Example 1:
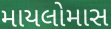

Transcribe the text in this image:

માયલોમાસ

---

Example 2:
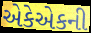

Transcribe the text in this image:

એકેએકની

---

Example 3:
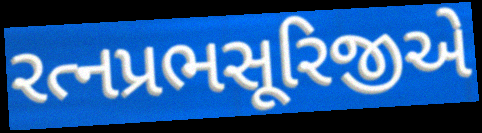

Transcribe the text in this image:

રત્નપ્રભસૂરિજીએ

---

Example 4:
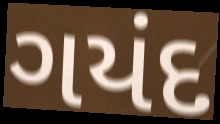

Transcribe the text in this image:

ગયંદ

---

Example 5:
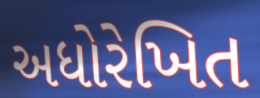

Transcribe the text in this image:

અધોરેખિત